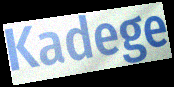
Kadege